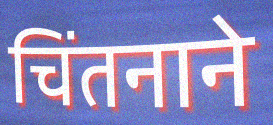
चिंतनाने